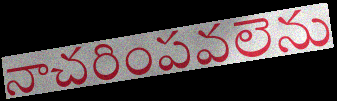
నాచరింపవలెను